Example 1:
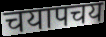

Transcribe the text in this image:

चयापचय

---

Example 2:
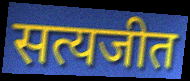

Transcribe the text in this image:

सत्यजीत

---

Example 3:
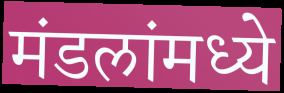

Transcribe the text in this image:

मंडलांमध्ये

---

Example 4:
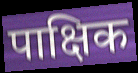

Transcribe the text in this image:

पाक्षिक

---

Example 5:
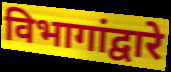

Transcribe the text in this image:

विभागांद्वारे